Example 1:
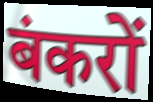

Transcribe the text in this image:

बंकरों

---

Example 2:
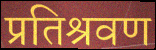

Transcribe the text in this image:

प्रतिश्रवण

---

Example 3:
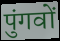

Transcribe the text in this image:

पुंगवों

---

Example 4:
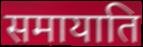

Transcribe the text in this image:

समायाति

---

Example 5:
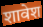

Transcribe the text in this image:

शावेश